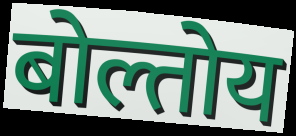
बोल्तोय